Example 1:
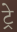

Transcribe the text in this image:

ट्रे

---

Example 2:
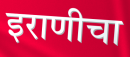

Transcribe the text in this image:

इराणीचा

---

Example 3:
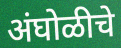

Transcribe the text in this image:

अंघोळीचे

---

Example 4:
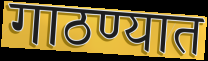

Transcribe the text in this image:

गाठण्यात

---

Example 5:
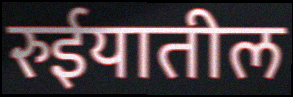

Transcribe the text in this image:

रुईयातील